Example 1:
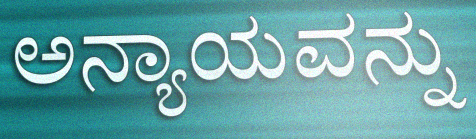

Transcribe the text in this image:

ಅನ್ಯಾಯವನ್ನು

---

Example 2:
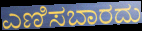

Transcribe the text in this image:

ಎಣಿಸಬಾರದು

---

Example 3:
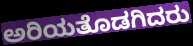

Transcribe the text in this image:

ಅರಿಯತೊಡಗಿದರು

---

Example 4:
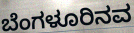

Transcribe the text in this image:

ಬೆಂಗಳೂರಿನವ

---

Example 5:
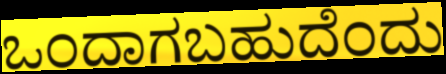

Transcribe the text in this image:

ಒಂದಾಗಬಹುದೆಂದು